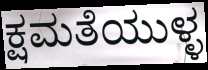
ಕ್ಷಮತೆಯುಳ್ಳ